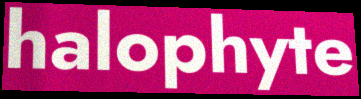
halophyte